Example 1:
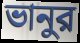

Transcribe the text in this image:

ভানুর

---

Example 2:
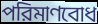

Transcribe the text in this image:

পরিমাণবোধ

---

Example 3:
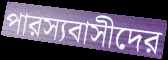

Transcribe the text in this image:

পারস্যবাসীদের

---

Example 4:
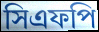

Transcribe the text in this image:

সিএফপি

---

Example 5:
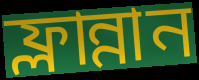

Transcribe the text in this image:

ফ্লান্নান